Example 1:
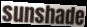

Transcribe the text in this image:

sunshade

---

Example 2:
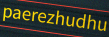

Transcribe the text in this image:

paerezhudhu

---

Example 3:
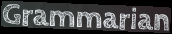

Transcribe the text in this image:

Grammarian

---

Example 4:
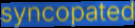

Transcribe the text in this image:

syncopated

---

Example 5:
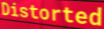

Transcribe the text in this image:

Distorted